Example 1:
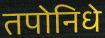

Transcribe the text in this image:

तपोनिधे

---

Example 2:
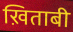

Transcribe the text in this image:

ख़िताबी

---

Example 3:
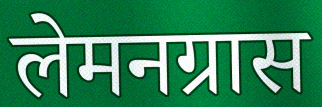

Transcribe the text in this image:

लेमनग्रास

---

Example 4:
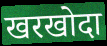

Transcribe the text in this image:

खरखोदा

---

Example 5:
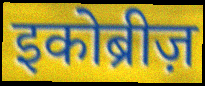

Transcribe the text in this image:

इकोब्रीज़